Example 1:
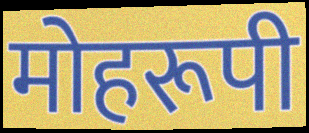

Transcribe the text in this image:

मोहरूपी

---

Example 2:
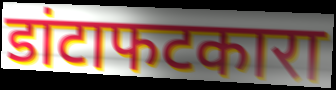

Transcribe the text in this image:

डांटाफटकारा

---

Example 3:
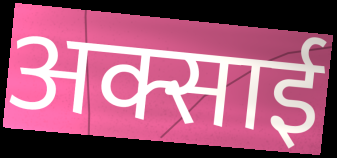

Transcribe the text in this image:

अक्साई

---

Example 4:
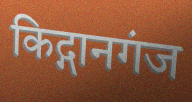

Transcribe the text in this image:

किद्गानगंज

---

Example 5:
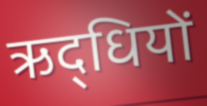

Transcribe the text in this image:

ऋद्धियों